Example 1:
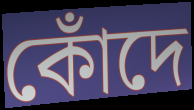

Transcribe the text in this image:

কোঁদে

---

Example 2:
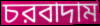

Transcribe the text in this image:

চরবাদাম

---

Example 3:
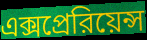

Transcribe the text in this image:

এক্সপ্রেরিয়েন্স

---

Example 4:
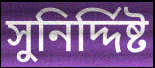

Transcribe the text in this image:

সুনির্দ্দিষ্ট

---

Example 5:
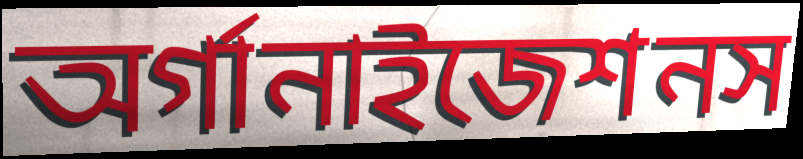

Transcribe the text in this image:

অর্গানাইজেশনস